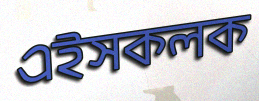
এইসকলক